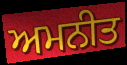
ਅਮਨੀਤ